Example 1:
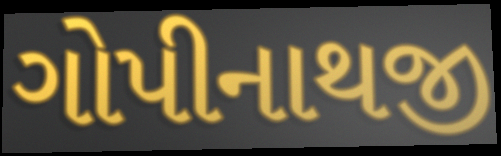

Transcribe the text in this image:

ગોપીનાથજી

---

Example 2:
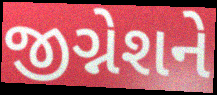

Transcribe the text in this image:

જીગ્નેશને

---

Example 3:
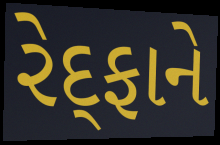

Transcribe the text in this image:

રેદ્ફાને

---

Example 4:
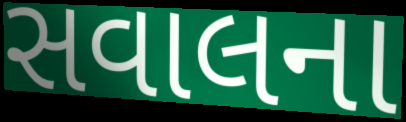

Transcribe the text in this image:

સવાલના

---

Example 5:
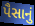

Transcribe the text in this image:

પૈસાનું